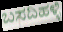
ಬಸದಿಹಳ್ಳಿ